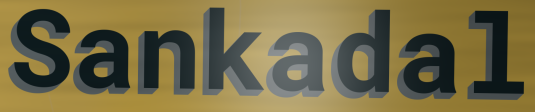
Sankadal